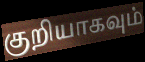
குறியாகவும்